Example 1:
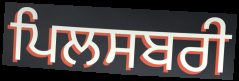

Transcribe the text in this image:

ਪਿਲਸਬਰੀ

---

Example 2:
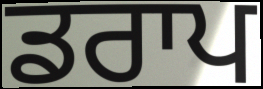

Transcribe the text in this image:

ਡਰਾਪ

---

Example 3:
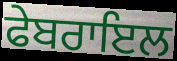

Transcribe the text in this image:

ਫੇਬਰਾਇਲ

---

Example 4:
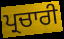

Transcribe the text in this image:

ਪ੍ਰਚਾਰੀ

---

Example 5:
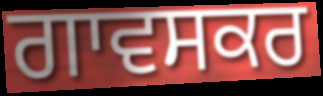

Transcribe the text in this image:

ਗਾਵਸਕਰ